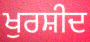
ਖੁਰਸ਼ੀਦ